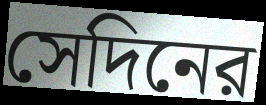
সেদিনের